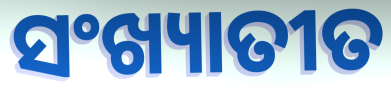
ସଂଖ୍ୟାତୀତ